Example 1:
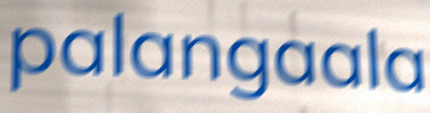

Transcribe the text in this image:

palangaala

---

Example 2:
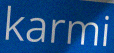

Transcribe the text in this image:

karmi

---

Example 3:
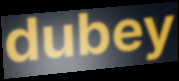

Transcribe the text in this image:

dubey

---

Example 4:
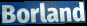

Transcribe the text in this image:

Borland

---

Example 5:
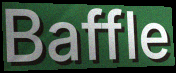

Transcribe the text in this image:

Baffle